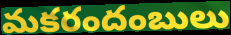
మకరందంబులు